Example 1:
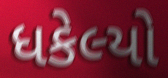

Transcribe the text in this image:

ધકેલ્યો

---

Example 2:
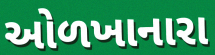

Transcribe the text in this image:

ઓળખાનારા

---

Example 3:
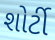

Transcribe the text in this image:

શોર્ટી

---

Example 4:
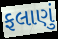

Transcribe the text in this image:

ફલાણું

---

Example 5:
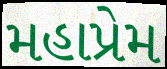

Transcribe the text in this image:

મહાપ્રેમ